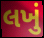
લખું